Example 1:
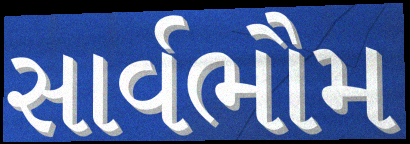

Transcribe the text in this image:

સાર્વભૌમ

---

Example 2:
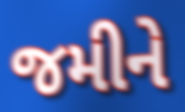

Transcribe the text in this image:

જમીને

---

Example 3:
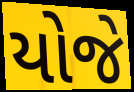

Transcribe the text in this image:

યોજે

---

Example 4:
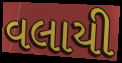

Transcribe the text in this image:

વલાયી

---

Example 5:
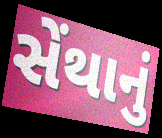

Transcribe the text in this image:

સેંથાનું